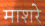
माशरे